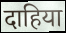
दाहिया